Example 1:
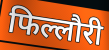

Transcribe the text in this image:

फिल्लौरी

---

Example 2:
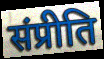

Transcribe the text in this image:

संप्रीति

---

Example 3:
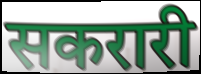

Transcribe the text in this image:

सकरारी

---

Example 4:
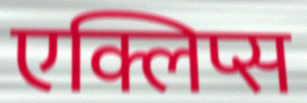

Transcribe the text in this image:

एक्लिप्स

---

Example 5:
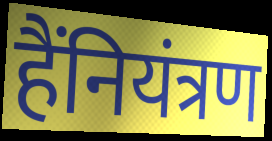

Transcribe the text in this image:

हैंनियंत्रण